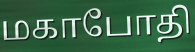
மகாபோதி